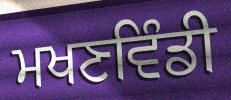
ਮਖਣਵਿੰਡੀ